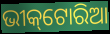
ଭୀକ୍‌ଟୋରିଆ